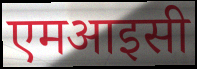
एमआइसी